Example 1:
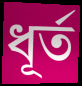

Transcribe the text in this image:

ধূর্ত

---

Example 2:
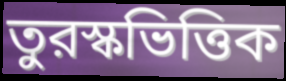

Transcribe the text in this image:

তুরস্কভিত্তিক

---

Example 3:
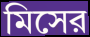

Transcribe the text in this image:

মিসের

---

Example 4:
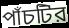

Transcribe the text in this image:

পাঁচটির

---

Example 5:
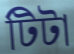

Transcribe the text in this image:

টিটা